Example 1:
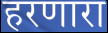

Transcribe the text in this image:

हरणारा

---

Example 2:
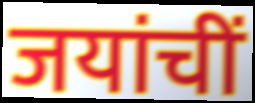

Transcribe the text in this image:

जयांचीं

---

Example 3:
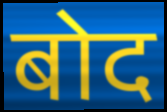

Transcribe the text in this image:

बोद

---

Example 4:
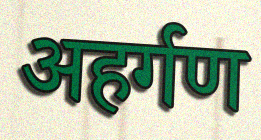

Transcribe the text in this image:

अहर्गण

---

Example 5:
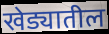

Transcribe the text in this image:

खेड्यातील